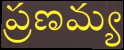
ప్రణమ్య